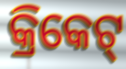
କ୍ରିକେଟ୍